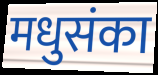
मधुसंका